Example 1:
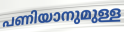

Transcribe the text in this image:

പണിയാനുമുള്ള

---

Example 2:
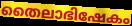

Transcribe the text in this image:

തൈലാഭിഷേകം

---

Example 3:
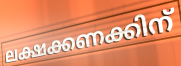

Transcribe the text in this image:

ലക്ഷക്കണക്കിന്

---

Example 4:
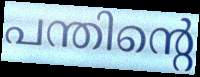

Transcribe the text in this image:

പന്തിന്റെ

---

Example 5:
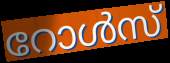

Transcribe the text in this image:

റോൾസ്